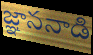
జ్ఞాననాడి